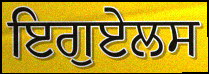
ਇਗੁਏਲਸ